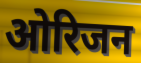
ओरिजन